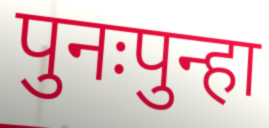
पुनःपुन्हा